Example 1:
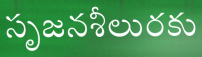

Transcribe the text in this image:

సృజనశీలురకు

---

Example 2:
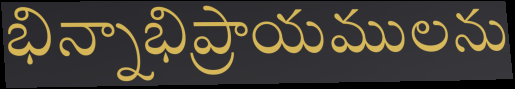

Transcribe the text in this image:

భిన్నాభిప్రాయములను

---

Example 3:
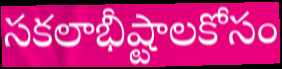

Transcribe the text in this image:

సకలాభీష్టాలకోసం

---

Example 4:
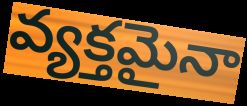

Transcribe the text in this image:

వ్యక్తమైనా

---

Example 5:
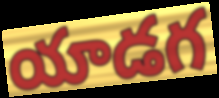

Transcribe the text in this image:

యాడగ